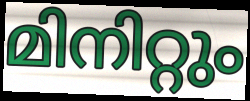
മിനിറ്റും